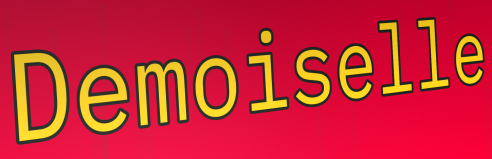
Demoiselle